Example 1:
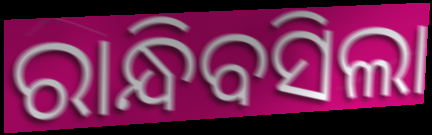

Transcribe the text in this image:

ରାନ୍ଧିବସିଲା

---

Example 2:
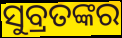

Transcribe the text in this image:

ସୁବ୍ରତଙ୍କର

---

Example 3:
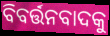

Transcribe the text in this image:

ବିବର୍ତ୍ତନବାଦକୁ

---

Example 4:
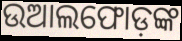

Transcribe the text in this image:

ଉଆଲଫୋଡ଼ଙ୍କ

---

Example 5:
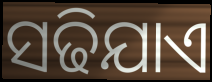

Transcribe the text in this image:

ସଢିଯାଏ